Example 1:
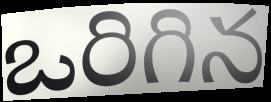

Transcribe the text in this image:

ఒరిగిన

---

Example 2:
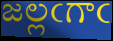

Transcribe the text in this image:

జల్లఁగాఁ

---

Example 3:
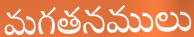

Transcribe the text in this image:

మగతనములు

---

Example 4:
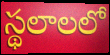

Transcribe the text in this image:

స్థలాలలో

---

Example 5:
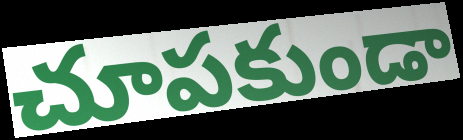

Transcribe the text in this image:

చూపకుండా